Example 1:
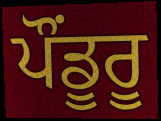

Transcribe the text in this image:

ਪੌਂਡੂਰੂ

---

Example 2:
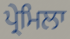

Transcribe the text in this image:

ਪ੍ਰੇਮਿਲਾ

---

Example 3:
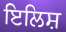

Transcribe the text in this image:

ਇਲਿਸ਼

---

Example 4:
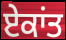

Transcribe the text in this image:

ਏਕਾਂਤ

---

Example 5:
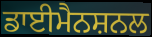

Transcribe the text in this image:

ਡਾਈਮੈਨਸ਼ਨਲ